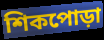
শিকপোড়া